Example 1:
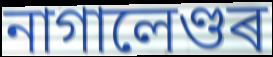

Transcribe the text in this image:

নাগালেণ্ডৰ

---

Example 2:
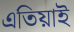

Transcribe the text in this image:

এতিয়াই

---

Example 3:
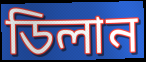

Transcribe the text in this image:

ডিলান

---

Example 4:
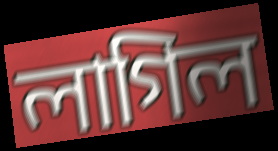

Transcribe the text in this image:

লাগিল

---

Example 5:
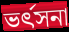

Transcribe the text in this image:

ভৰ্ৎসনা